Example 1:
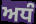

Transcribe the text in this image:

ਅਧੰ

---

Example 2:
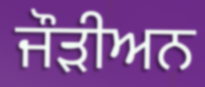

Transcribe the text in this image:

ਜੌੜੀਅਨ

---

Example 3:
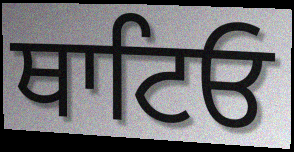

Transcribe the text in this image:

ਥਾਟਿਓ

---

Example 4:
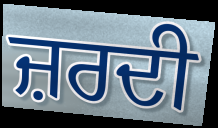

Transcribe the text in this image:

ਜ਼ਰਦੀ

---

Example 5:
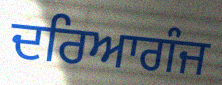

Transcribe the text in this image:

ਦਰਿਆਗੰਜ